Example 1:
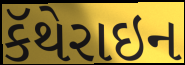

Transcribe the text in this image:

કૅથેરાઇન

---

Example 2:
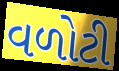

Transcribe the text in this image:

વળોટી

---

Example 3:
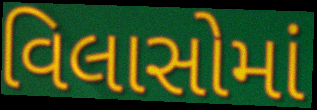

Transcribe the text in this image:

વિલાસોમાં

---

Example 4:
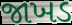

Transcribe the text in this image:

જાખડ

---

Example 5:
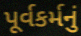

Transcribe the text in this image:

પૂર્વકર્મનું